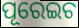
ପୂରେଇଚ